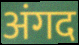
अंगद